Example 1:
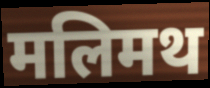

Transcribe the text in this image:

मलिमथ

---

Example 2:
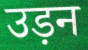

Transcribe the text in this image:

उड़न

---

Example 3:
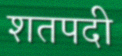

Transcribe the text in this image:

शतपदी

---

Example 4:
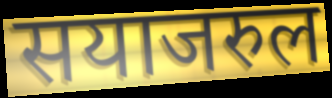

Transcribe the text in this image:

सयाजरुल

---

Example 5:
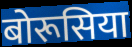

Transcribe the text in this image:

बोरूसिया